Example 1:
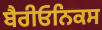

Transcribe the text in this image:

ਬੈਰੀਓਨਿਕਸ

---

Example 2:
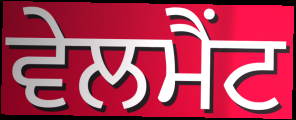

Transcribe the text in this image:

ਵੇਲਮੈਂਟ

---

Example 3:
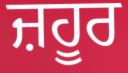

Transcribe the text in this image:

ਜ਼ਹੂਰ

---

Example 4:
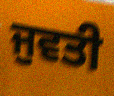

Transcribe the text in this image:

ਜੁਵਤੀ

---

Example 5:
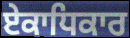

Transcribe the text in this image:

ਏਕਾਧਿਕਾਰ